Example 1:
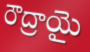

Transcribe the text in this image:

రౌద్రాయై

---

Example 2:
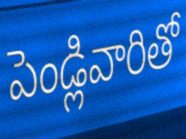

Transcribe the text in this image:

పెండ్లివారితో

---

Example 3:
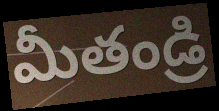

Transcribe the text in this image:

మీతండ్రి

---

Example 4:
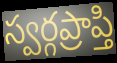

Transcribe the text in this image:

స్వర్గప్రాప్తి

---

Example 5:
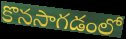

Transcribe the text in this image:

కొనసాగడంలో